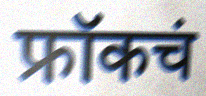
फ्रॉकचं